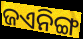
ଜଏନିଙ୍ଗ